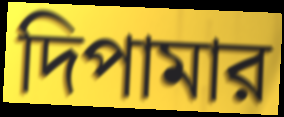
দিপামার